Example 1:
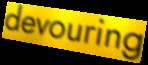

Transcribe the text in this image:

devouring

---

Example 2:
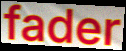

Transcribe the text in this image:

fader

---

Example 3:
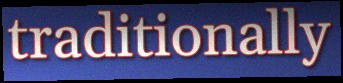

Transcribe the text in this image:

traditionally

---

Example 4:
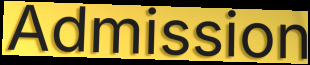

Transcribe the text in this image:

Admission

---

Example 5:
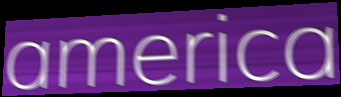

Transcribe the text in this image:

america